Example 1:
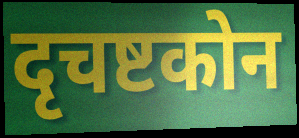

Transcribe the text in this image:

दृचष्टकोन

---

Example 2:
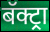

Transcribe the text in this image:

बॅक्ट्रा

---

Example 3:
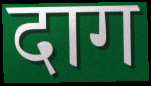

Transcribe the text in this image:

दाग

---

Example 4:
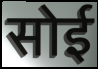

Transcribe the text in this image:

सोई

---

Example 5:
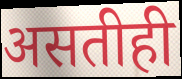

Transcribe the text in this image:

असतीही